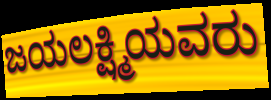
ಜಯಲಕ್ಷ್ಮಿಯವರು